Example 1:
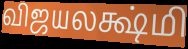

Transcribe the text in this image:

விஜயலக்ஷ்மி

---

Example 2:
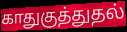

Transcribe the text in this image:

காதுகுத்துதல்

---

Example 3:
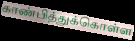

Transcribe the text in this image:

காண்பித்துக்கொள்ள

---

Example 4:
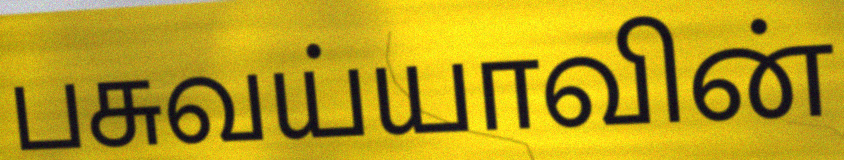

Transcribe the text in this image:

பசுவய்யாவின்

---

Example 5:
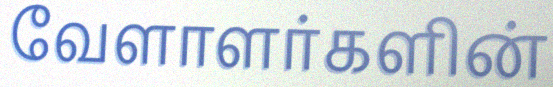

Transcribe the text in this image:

வேளாளர்களின்